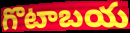
గొటాబయ